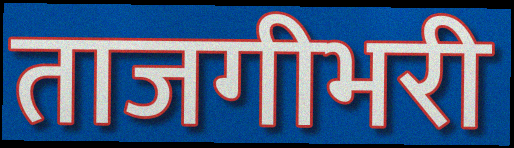
ताजगीभरी